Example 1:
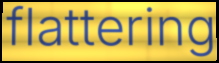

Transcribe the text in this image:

flattering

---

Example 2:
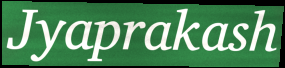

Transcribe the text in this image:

Jyaprakash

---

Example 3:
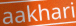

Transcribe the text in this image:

aakhari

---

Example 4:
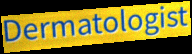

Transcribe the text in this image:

Dermatologist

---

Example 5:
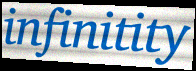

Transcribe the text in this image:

infinitity